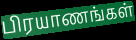
பிரயாணங்கள்